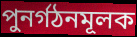
পুনর্গঠনমূলক